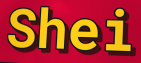
Shei